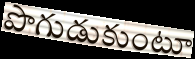
పొగుడుకుంటూ